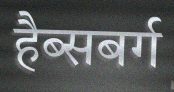
हैब्सबर्ग